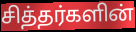
சித்தர்களின்